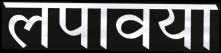
लपावया